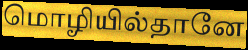
மொழியில்தானே